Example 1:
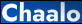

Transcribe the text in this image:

Chaalo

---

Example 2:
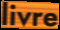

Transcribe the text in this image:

livre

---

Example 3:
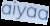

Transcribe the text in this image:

aiyaa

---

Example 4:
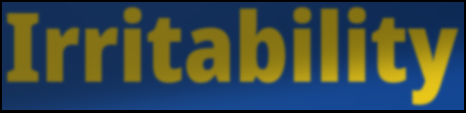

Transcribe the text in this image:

Irritability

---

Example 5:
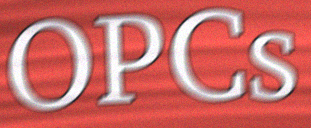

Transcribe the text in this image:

OPCs